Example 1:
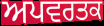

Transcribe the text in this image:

ਅਪਵਰਤਕ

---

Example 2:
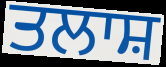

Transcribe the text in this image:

ਤਲਾਸ਼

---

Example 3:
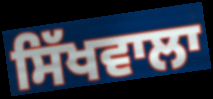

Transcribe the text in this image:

ਸਿੱਖਵਾਲਾ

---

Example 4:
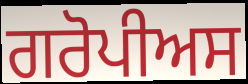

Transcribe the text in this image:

ਗਰੋਪੀਅਸ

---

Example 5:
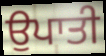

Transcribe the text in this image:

ਉਪਾਤੀ